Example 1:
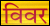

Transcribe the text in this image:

विवर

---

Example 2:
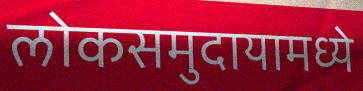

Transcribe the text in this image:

लोकसमुदायामध्ये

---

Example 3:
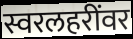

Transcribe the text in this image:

स्वरलहरींवर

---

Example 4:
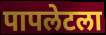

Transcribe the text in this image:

पापलेटला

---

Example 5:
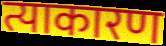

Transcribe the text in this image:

त्याकारण